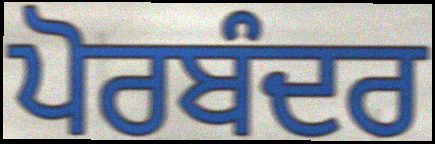
ਪੋਰਬੰਦਰ